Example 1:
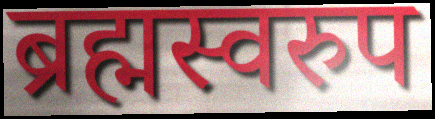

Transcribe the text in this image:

ब्रह्मस्वरुप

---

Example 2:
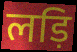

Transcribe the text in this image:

लड़ि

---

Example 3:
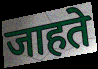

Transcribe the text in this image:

जाहते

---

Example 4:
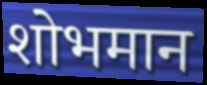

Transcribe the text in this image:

शोभमान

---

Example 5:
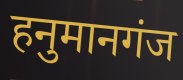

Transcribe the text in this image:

हनुमानगंज